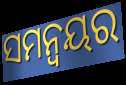
ସମନ୍ଵୟର